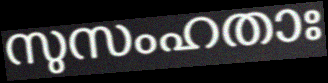
സുസംഹതാഃ